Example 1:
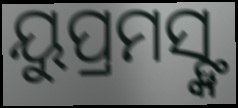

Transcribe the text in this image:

ୟୁପ୍ରମସ୍ଙ୍କ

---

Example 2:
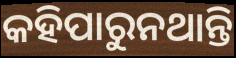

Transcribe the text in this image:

କହିପାରୁନଥାନ୍ତି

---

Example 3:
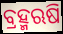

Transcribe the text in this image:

ବ୍ରହ୍ମଋଷି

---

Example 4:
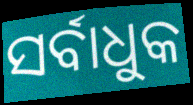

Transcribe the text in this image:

ସର୍ବାଧୁକ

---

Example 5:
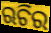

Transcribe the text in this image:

ଋଚିର